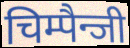
चिम्पैन्जी